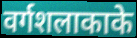
वर्गशलाकाके